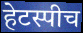
हेटस्पीच